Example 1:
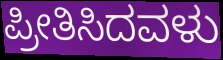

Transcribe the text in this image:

ಪ್ರೀತಿಸಿದವಳು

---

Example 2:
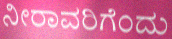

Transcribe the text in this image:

ನೀರಾವರಿಗೆಂದು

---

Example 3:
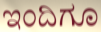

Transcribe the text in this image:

ಇಂದಿಗೂ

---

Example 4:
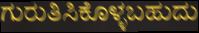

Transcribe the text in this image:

ಗುರುತಿಸಿಕೊಳ್ಳಬಹುದು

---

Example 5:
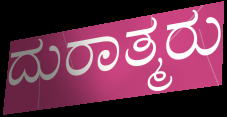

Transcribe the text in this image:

ದುರಾತ್ಮರು